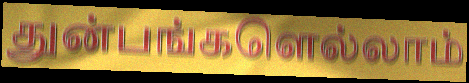
துன்பங்களெல்லாம்